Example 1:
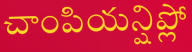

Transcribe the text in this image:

చాంపియన్షిప్లో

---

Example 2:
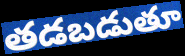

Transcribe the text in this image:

తడబడుతూ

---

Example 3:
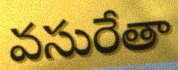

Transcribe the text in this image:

వసురేతా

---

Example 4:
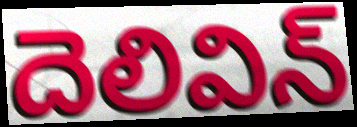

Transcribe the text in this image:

దెలివిన్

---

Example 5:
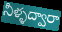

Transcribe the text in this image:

నీళ్ళద్వారా